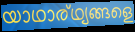
യാഥാര്ഥ്യങ്ങളെ